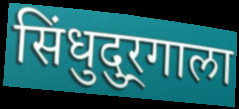
सिंधुदुर्गाला